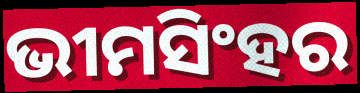
ଭୀମସିଂହର